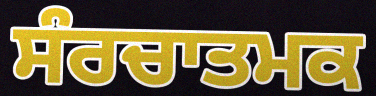
ਸੰਰਚਾਤਮਕ